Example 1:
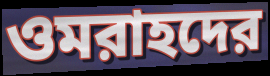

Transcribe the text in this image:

ওমরাহদের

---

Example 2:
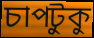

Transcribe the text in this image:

চাপটুকু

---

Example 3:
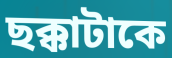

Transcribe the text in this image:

ছক্কাটাকে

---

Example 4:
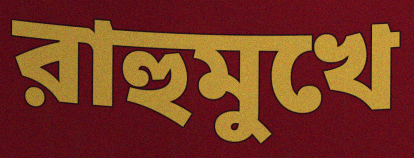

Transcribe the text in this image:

রাহুমুখে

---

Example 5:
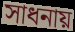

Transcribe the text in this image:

সাধনায়